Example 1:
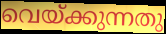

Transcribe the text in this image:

വെയ്ക്കുന്നതു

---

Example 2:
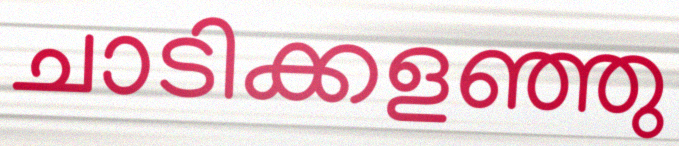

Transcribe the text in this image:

ചാടിക്കളഞ്ഞു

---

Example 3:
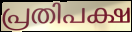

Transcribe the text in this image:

പ്രതിപക്ഷ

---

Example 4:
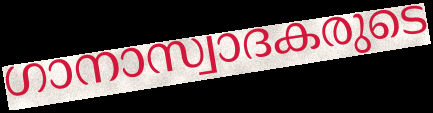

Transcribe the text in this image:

ഗാനാസ്വാദകരുടെ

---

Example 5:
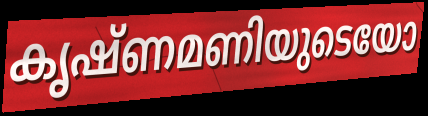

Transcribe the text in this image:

കൃഷ്ണമണിയുടെയോ